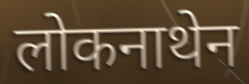
लोकनाथेन